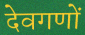
देवगणों